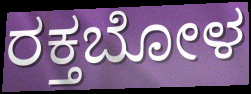
ರಕ್ತಬೋಳ